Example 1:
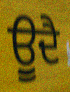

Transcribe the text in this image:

ਊੁਦੈ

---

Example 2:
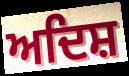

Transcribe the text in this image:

ਅਦਿਸ਼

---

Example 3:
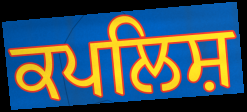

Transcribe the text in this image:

ਕਪਲਿਸ਼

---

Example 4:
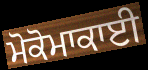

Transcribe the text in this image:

ਮੋਕੋਮਾਕਾਈ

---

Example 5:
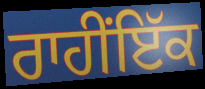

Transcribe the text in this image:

ਰਾਹੀਂਇੱਕ